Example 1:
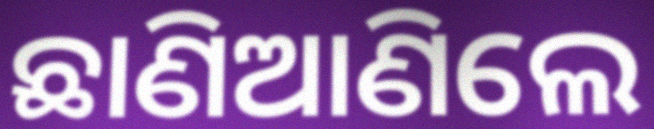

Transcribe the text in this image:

ଛାଣିଆଣିଲେ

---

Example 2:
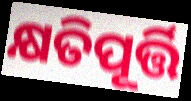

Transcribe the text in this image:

କ୍ଷତିପୂର୍ତ୍ତି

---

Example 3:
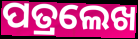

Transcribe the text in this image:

ପତ୍ରଲେଖ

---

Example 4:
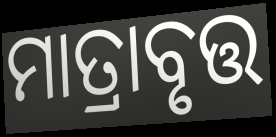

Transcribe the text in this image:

ମାତ୍ରାବୃତ୍ତ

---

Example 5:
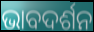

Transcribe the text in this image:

ଭାବଦର୍ଶନ